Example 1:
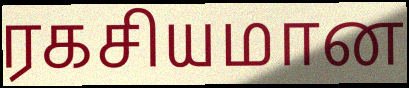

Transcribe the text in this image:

ரகசியமான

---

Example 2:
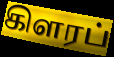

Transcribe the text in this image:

கிளரப்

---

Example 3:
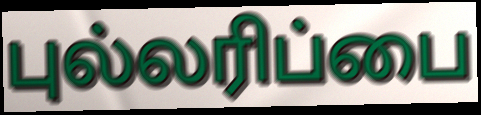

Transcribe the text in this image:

புல்லரிப்பை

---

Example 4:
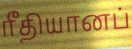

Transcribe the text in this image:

ரீதியானப்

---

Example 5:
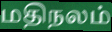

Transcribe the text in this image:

மதிநலம்